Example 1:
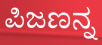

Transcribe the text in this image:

ಪಿಜಣನ್ನ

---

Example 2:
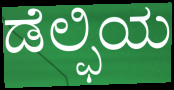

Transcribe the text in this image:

ಡೆಲ್ಫಿಯ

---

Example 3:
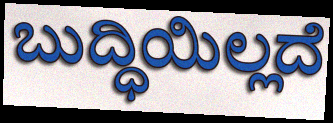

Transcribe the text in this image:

ಬುದ್ಧಿಯಿಲ್ಲದೆ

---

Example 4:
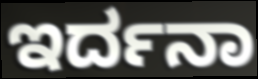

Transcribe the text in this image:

ಇರ್ದನಾ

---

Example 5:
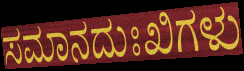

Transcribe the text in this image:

ಸಮಾನದುಃಖಿಗಳು